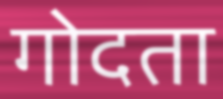
गोदता